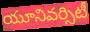
యూనివర్సిటీ